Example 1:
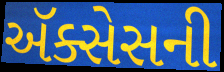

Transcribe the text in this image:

ઍક્સેસની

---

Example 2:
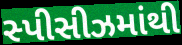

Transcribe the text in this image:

સ્પીસીઝમાંથી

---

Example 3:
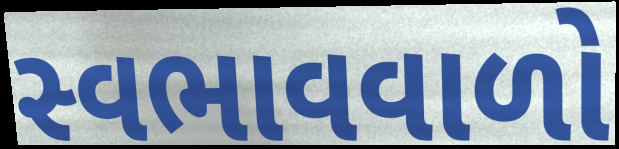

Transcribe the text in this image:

સ્વભાવવાળો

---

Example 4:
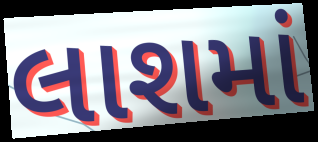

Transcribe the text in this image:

લાશમાં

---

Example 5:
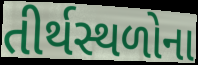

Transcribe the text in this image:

તીર્થસ્થળોના